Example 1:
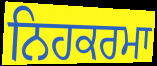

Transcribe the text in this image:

ਨਿਹਕਰਮਾ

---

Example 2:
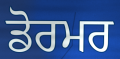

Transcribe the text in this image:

ਡੋਰਮਰ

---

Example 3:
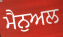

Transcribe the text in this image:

ਮੈਨੁਅਲ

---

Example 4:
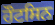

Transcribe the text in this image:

ਹੌਟਸਿਨ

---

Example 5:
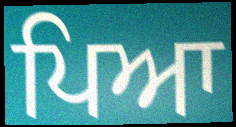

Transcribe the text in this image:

ਪਿਆ